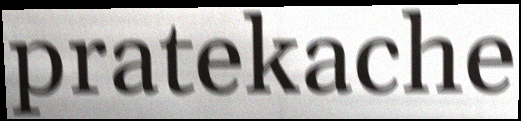
pratekache